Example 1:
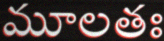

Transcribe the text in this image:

మూలతః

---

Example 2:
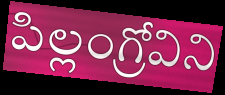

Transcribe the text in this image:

పిల్లంగ్రోవిని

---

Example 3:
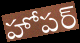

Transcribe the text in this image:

హోపర్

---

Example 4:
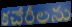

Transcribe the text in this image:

కచేరీలను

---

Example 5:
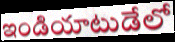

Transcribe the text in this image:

ఇండియాటుడేలో